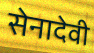
सेनादेवी